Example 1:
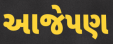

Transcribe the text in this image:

આજેપણ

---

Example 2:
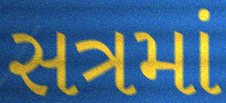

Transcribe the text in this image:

સત્રમાં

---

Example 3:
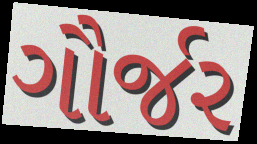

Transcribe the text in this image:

ગૌર્જર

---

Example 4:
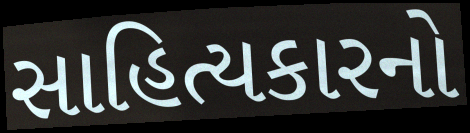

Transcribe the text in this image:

સાહિત્યકારનો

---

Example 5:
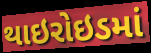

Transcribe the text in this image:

થાઇરોઇડમાં